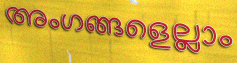
അംഗങ്ങളെല്ലാം